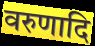
वरुणादि